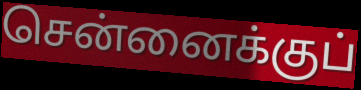
சென்னைக்குப்